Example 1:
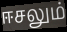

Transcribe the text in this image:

ஈசலும்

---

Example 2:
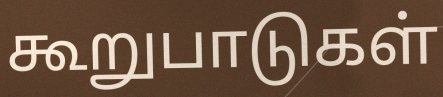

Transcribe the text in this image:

கூறுபாடுகள்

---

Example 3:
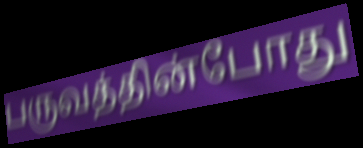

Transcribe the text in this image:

பருவத்தின்போது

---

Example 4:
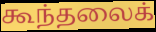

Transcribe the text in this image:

கூந்தலைக்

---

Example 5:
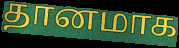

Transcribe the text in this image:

தானமாக